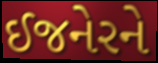
ઈજનેરને